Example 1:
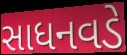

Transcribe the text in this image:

સાધનવડે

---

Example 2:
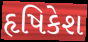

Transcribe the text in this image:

હૃષિકેશ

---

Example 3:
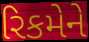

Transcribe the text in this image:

રિકમેને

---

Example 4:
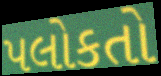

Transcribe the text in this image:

પલોકતો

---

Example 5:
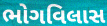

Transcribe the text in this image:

ભોગવિલાસ